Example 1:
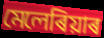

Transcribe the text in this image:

মেলেৰিয়াৰ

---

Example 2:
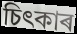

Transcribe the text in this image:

চিৎকাৰ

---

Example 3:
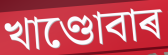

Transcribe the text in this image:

খাণ্ডোবাৰ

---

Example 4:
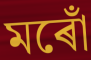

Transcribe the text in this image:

মৰোঁ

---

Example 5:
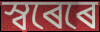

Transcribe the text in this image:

স্বৰেৰে